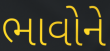
ભાવોને